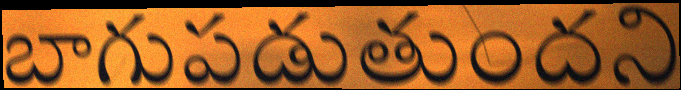
బాగుపడుతుందని